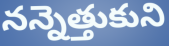
నన్నెత్తుకుని